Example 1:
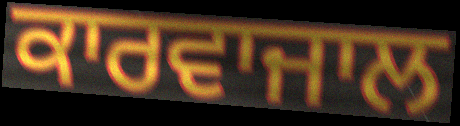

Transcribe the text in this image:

ਕਾਰਵਾਜਾਲ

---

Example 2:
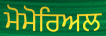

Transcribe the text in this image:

ਮੋਮੋਰਿਅਲ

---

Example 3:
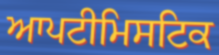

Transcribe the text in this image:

ਆਪਟੀਮਿਸਟਿਕ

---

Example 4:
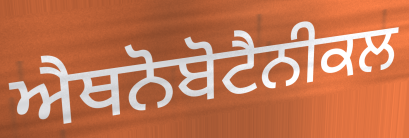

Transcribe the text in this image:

ਐਥਨੋਬੋਟੈਨੀਕਲ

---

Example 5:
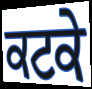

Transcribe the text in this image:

ਕਟਕੇ